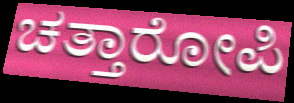
ಚತ್ತಾರೋಪಿ